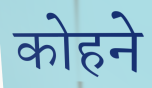
कोहने